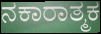
ನಕಾರಾತ್ಮಕ